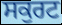
ਸਕੁਰਟ